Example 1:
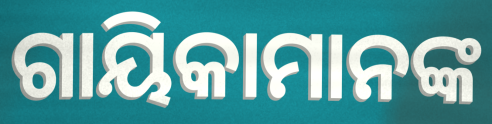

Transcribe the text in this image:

ଗାୟିକାମାନଙ୍କ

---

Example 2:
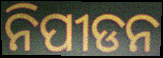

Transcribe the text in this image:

ନିପୀଡନ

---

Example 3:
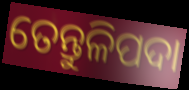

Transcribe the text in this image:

ତେନ୍ତୁଳିପଦା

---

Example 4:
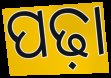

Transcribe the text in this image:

ପଢ଼ା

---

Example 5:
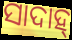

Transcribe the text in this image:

ସାଦାହ୍